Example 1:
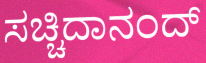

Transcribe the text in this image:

ಸಚ್ಚಿದಾನಂದ್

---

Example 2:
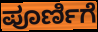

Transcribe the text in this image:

ಪೂರ್ಣಿಗೆ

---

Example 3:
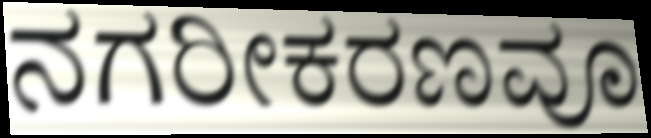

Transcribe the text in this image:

ನಗರೀಕರಣವೂ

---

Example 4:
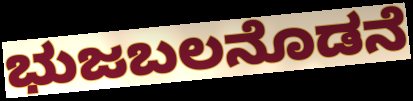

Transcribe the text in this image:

ಭುಜಬಲನೊಡನೆ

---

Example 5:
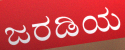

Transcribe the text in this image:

ಜರಡಿಯ